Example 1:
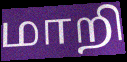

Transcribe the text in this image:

மாறி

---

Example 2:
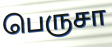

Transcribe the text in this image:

பெருசா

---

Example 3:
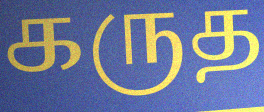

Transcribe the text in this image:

கருத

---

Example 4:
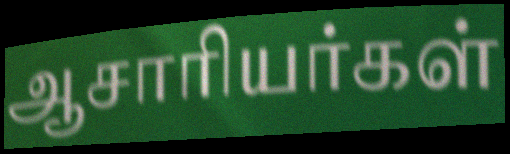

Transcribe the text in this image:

ஆசாரியர்கள்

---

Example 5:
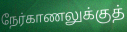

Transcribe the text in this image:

நேர்காணலுக்குத்